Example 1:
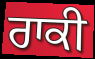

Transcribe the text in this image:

ਰਾਕੀ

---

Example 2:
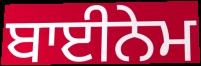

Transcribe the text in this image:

ਬਾਈਨੇਮ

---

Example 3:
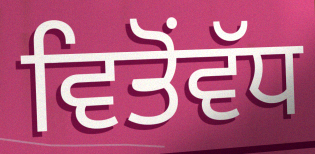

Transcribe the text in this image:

ਵਿਤੋਂਵੱਧ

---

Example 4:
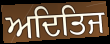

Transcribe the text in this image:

ਅਦਿਤਿਜ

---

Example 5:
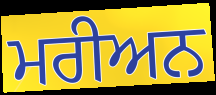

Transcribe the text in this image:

ਮਰੀਅਨ